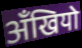
अँखियो